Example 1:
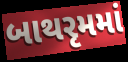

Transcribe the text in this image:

બાથરૃમમાં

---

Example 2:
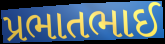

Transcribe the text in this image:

પ્રભાતભાઈ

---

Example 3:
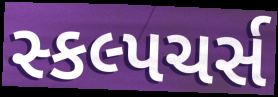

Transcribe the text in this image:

સ્કલ્પચર્સ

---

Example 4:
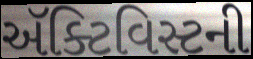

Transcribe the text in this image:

ઍક્ટિવિસ્ટની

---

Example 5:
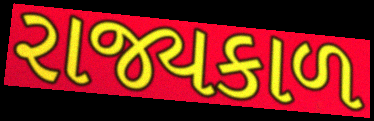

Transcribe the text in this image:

રાજ્યકાળ